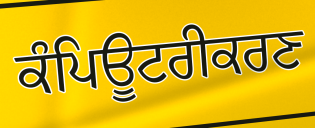
ਕੰਪਿਊਟਰੀਕਰਣ